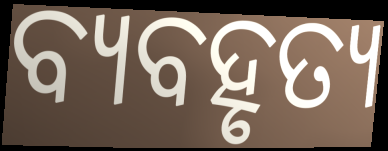
ବ୍ୟବହୃତ୍ୟ